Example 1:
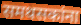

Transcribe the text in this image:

समथसकांना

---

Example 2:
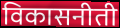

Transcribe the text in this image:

विकासनीती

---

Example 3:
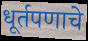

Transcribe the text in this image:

धूर्तपणाचे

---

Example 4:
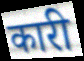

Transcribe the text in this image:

कारी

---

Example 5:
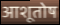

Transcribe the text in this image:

आशूतोष